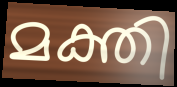
മക്തി